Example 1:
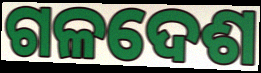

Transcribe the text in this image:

ଗଳଦେଶ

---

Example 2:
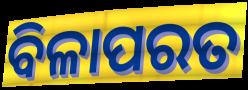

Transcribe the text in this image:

ବିଳାପରତ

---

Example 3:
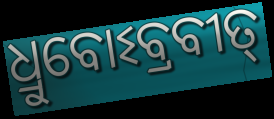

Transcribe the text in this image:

ଧ୍ରୁବୋଽବ୍ରବୀତ୍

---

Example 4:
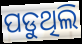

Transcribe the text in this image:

ପଡୁଥିଲି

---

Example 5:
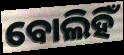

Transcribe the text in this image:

ବୋଲିହିଁ